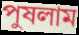
পুষলাম